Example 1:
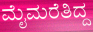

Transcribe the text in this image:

ಮೈಮರೆತಿದ್ದ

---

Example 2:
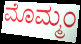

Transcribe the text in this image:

ಮೊಮ್ಮಂ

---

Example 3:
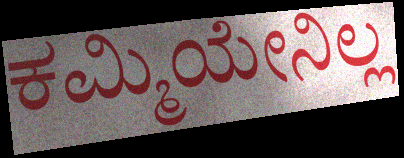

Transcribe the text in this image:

ಕಮ್ಮಿಯೇನಿಲ್ಲ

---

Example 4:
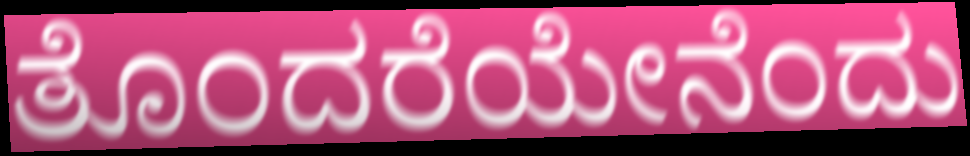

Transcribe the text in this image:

ತೊಂದರೆಯೇನೆಂದು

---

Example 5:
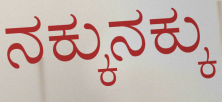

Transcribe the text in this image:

ನಕ್ಕುನಕ್ಕು